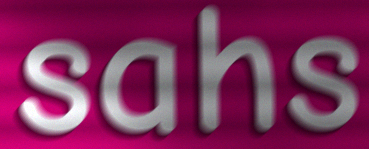
sahs